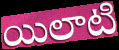
యిలాటి